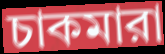
চাকমারা